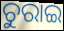
ଚୁରାଇ